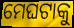
ମେଘଟାକୁ